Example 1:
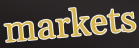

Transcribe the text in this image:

markets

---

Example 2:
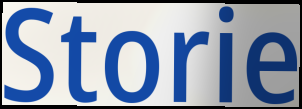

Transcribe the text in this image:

Storie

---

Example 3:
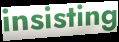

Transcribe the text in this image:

insisting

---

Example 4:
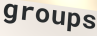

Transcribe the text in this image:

groups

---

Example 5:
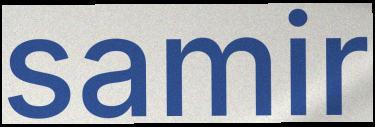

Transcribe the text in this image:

samir